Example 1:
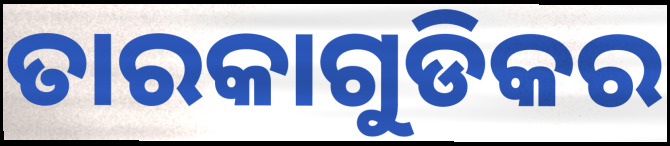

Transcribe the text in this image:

ତାରକାଗୁଡିକର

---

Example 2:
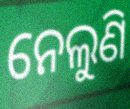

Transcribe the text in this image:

ନେଲୁଣି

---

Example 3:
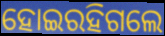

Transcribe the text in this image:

ହୋଇରହିଗଲେ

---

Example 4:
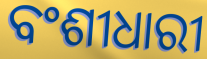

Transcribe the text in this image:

ବଂଶୀଧାରୀ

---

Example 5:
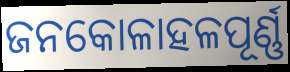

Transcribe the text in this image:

ଜନକୋଳାହଳପୂର୍ଣ୍ଣ